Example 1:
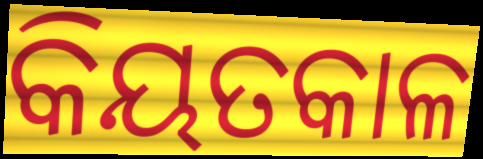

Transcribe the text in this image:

କିୟତକାଳ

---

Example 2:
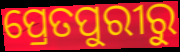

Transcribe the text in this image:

ପ୍ରେତପୁରୀରୁ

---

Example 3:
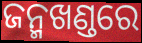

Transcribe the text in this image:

ଜନ୍ମଖଣ୍ଡରେ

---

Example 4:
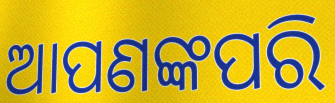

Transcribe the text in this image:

ଆପଣଙ୍କପରି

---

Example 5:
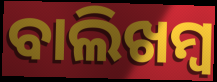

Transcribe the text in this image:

ବାଲିଖମ୍ବ